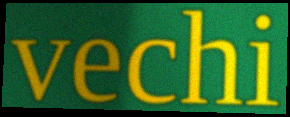
vechi